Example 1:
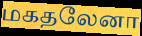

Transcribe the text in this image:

மகதலேனா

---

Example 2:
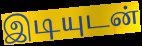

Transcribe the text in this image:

இடியுடன்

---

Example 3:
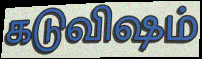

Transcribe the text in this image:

கடுவிஷம்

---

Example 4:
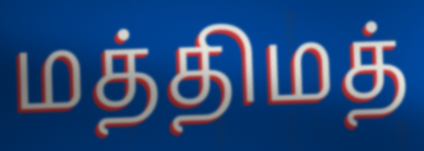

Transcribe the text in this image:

மத்திமத்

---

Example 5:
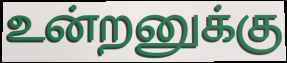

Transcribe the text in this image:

உன்றனுக்கு